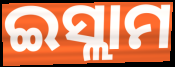
ଇସ୍ଲାମ